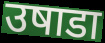
उषाडा